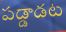
పడ్డాడట